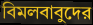
বিমলবাবুদের